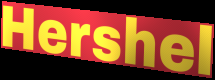
Hershel